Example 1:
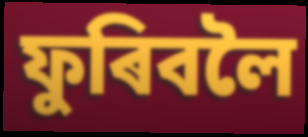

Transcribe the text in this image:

ফুৰিবলৈ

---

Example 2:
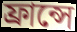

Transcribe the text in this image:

ফ্ৰান্সে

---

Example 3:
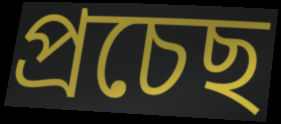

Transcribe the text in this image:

প্ৰচেছ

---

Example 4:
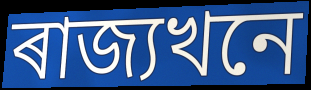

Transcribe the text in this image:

ৰাজ্যখনে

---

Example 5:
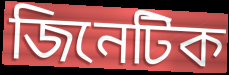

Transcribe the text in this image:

জিনেটিক